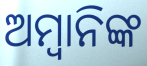
ଅମ୍ବାନିଙ୍କ